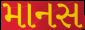
માનસ